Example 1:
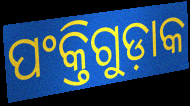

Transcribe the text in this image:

ପଂକ୍ତିଗୁଡ଼ାକ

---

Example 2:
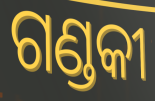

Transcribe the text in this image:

ଗଣ୍ଡକୀ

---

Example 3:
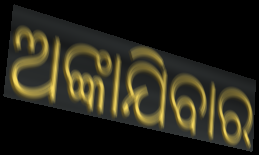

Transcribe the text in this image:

ଅଙ୍କାଯିବାର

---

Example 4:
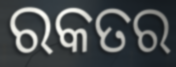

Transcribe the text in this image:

ରକତର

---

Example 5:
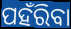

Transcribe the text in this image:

ପହଁରିବା